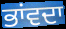
ਭਾਂਵਦਾ